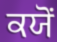
ਕਯੋਂ